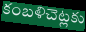
కంబళిచెట్లకు